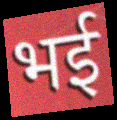
भई